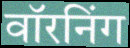
वॉरनिंग